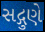
સદ્ગુણે